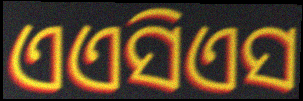
ଏଏସିଏସ